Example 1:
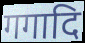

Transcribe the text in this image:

गगादि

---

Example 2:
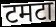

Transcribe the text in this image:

टमटा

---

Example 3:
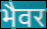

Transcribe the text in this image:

भैवर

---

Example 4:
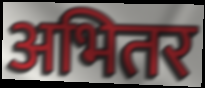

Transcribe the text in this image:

अभितर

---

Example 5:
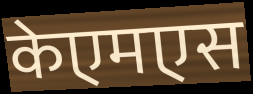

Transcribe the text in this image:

केएमएस